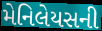
મેનિલેયસની